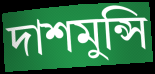
দাশমুন্সি